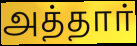
அத்தார்